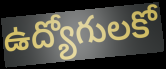
ఉద్యోగులకో